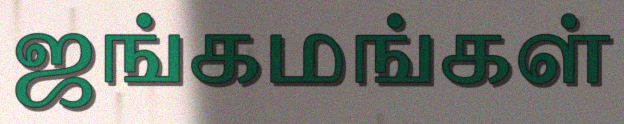
ஜங்கமங்கள்